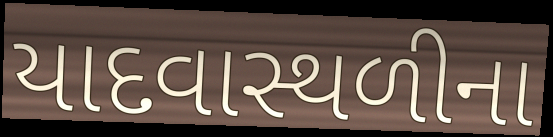
યાદવાસ્થળીના